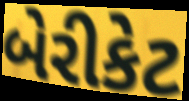
બેરીકેટ